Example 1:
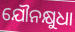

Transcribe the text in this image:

ଯୌନକ୍ଷୁଧା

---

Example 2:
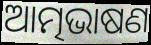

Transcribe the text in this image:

ଆତ୍ମଭାଷଣ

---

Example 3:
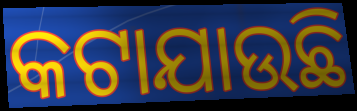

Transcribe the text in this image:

କଟାଯାଉଛି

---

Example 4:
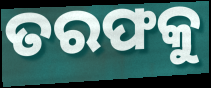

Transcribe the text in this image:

ତରଫକୁ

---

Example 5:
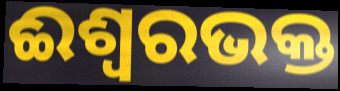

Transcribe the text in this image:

ଈଶ୍ୱରଭକ୍ତ